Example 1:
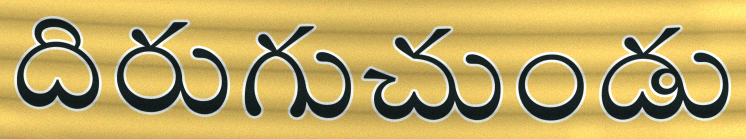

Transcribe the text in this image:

దిరుగుచుండు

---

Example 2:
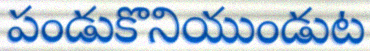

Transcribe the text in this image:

పండుకొనియుండుట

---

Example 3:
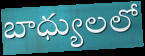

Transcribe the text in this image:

బాధ్యులలో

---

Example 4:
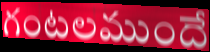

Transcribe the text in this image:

గంటలముందే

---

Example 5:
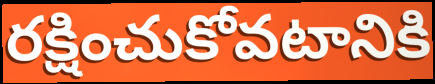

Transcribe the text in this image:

రక్షించుకోవటానికి